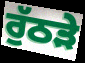
ਰੁੱਠੜੇ